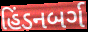
હિંડનબર્ગ